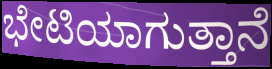
ಭೇಟಿಯಾಗುತ್ತಾನೆ